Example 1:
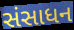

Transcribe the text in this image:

સંસાધન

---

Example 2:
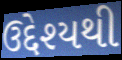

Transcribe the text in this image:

ઉદ્દેશ્યથી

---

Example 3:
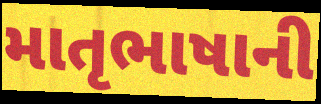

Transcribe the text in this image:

માતૃભાષાની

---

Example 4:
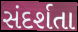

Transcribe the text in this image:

સંદર્શતા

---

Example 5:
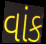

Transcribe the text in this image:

વાંક